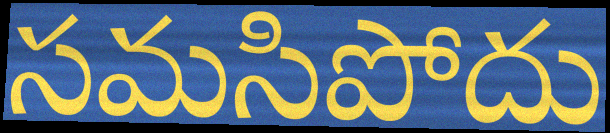
సమసిపోదు